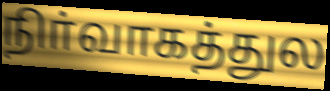
நிர்வாகத்துல